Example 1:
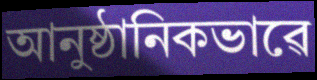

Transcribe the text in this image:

আনুষ্ঠানিকভাৱে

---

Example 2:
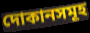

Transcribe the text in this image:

দোকানসমূহ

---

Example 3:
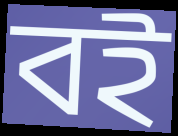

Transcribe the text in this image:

বই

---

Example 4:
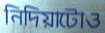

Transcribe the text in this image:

নিদিয়াটোও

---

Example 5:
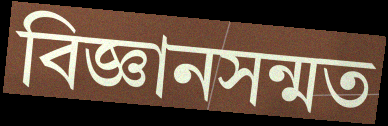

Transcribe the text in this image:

বিজ্ঞানসন্মত